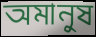
অমানুষ